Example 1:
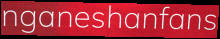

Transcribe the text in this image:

nganeshanfans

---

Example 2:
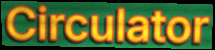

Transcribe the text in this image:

Circulator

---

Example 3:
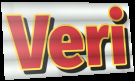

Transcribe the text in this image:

Veri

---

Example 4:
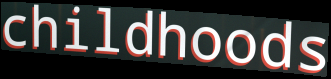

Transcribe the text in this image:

childhoods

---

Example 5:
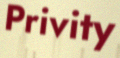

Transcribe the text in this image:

Privity